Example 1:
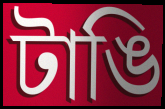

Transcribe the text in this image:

টাঙি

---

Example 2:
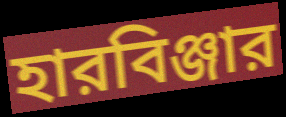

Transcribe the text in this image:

হারবিঞ্জার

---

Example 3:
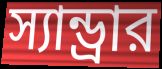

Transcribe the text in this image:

স্যান্ড্রার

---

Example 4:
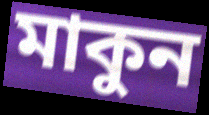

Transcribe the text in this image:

মাকুন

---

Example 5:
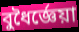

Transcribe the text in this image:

বুধৈর্জ্ঞেয়া